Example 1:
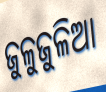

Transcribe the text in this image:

ଜୁଳୁଜୁଳିଆ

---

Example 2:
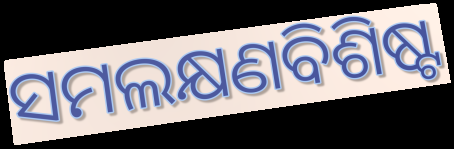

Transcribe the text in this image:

ସମଲକ୍ଷଣବିଶିଷ୍ଟ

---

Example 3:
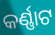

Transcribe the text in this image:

କର୍ଣ୍ଣାଟ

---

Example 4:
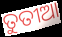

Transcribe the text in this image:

ତୁତୀଆ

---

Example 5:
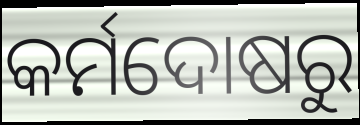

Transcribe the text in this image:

କର୍ମଦୋଷରୁ